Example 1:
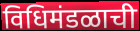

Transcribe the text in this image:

विधिमंडळाची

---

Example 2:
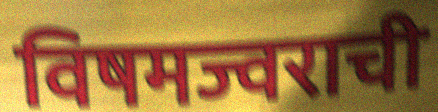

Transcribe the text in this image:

विषमज्वराची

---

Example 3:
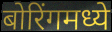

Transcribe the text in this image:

बोरिंगमध्ये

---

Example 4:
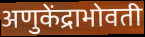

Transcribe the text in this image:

अणुकेंद्राभोवती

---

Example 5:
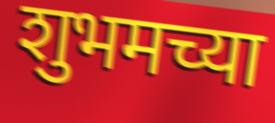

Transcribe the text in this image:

शुभमच्या